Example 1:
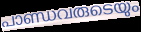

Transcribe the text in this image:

പാണ്ഡവരുടെയും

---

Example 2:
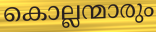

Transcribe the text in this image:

കൊല്ലന്മാരും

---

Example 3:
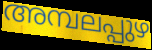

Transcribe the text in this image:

അമ്പലപ്പുഴ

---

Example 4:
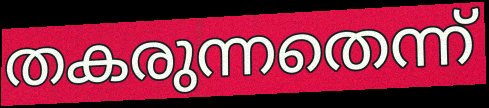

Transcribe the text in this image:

തകരുന്നതെന്ന്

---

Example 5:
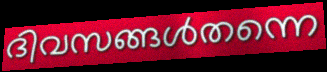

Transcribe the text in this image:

ദിവസങ്ങൾതന്നെ